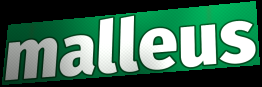
malleus